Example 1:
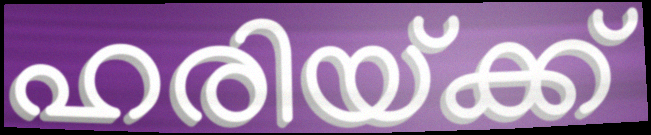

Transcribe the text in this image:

ഹരിയ്‌ക്ക്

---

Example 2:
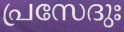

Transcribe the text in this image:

പ്രസേദുഃ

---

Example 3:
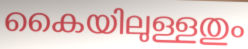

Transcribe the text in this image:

കൈയിലുള്ളതും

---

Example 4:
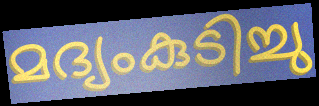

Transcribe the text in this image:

മദ്യംകുടിച്ചു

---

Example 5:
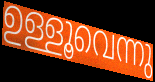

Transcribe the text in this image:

ഉള്ളൂവെന്നു